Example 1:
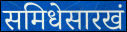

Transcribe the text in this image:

समिधेसारखं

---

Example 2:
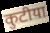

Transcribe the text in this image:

कुटीया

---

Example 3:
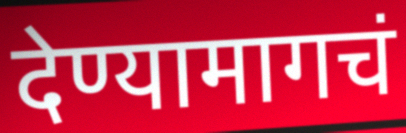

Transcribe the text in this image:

देण्यामागचं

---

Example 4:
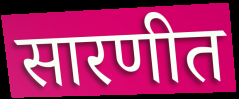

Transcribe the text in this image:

सारणीत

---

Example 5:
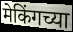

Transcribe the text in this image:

मेकिंगच्या